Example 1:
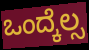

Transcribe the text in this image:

ಒಂದ್ಕೆಲ್ಸ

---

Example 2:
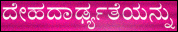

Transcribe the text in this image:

ದೇಹದಾರ್ಢ್ಯತೆಯನ್ನು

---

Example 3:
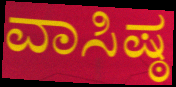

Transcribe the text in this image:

ವಾಸಿಷ್ಠ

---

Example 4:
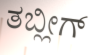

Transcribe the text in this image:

ತಬ್ಲೀಗ್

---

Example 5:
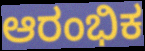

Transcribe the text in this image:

ಆರಂಭಿಕ